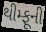
થીમ્ફૂની